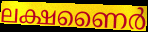
ലക്ഷണൈർ